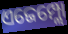
ଏଜେମ୍ପ୍ଲୋ